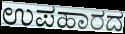
ಉಪಹಾರದ